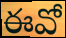
ఈవో